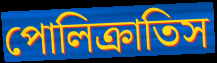
পোলিক্রাতিস